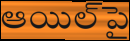
ఆయిల్‌పై